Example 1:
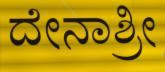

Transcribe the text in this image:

ದೇನಾಶ್ರೀ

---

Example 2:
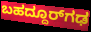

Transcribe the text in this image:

ಬಹದ್ದೂರ್‌ಗಢ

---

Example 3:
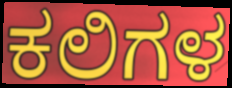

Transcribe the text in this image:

ಕಲಿಗಳ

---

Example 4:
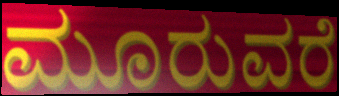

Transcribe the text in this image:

ಮೂರುವರೆ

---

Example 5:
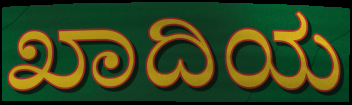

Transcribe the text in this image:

ಖಾದಿಯ